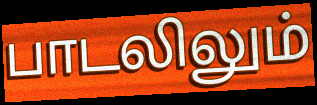
பாடலிலும்